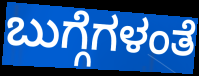
ಬುಗ್ಗೆಗಳಂತೆ